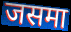
जसमा